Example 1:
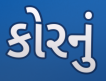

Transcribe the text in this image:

કોરનું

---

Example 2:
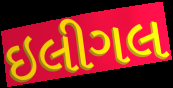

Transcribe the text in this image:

ઇલીગલ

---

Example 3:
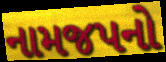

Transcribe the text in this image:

નામજપનો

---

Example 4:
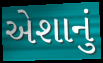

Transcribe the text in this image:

એશાનું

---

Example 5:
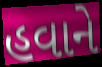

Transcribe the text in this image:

હવાને